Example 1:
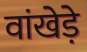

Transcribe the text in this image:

वांखेड़े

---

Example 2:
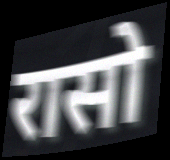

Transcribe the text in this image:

रासो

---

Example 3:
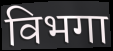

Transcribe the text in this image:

विभगा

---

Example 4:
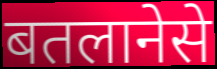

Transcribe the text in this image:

बतलानेसे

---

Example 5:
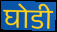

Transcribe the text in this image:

घोडी